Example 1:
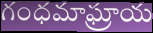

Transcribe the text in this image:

గంధమాఘ్రాయ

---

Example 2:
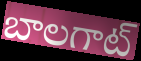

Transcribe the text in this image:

బాలగాట్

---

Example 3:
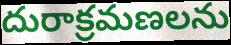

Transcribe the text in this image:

దురాక్రమణలను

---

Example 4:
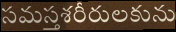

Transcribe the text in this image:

సమస్తశరీరులకును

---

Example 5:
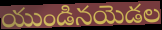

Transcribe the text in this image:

యుండినయెడల